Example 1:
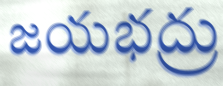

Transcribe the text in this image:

జయభద్రు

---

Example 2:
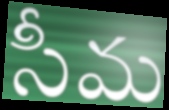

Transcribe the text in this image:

సీమ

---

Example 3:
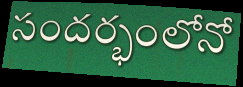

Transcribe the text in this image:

సందర్భంలోనో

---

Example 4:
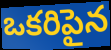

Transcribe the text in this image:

ఒకరిపైన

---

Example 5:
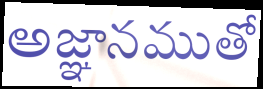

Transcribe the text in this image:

అజ్ఞానముతో